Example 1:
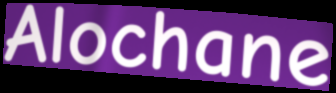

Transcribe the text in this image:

Alochane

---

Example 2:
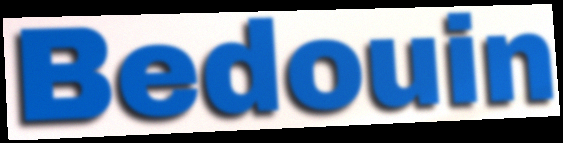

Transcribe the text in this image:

Bedouin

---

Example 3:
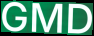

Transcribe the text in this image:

GMD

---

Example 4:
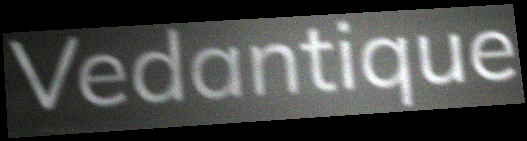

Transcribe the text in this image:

Vedantique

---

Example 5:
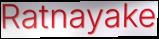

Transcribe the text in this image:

Ratnayake